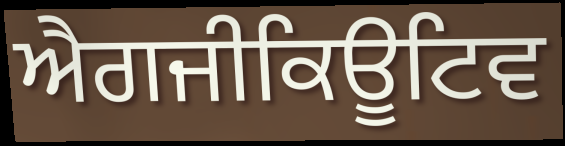
ਐਗਜੀਕਿਊਟਿਵ